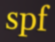
spf